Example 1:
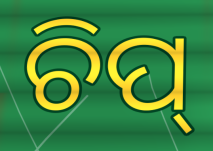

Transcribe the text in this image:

ଚିପ୍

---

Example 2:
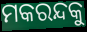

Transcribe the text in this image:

ମକରନ୍ଦକୁ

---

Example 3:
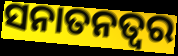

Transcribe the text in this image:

ସନାତନତ୍ୱର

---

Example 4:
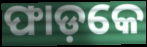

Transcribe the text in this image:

ଫାଡ଼କେ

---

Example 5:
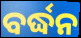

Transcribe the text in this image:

ବର୍ଦ୍ଧନ